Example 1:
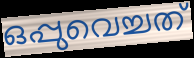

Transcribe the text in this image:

ഒപ്പുവെച്ചത്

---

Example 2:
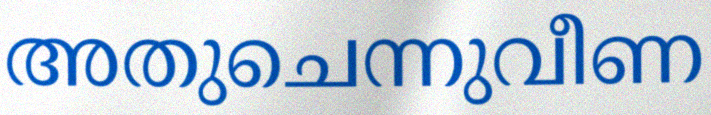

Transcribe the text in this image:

അതുചെന്നുവീണ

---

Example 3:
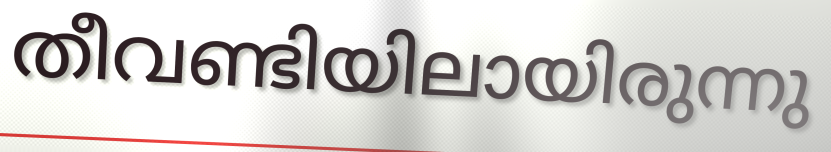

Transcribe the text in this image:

തീവണ്ടിയിലായിരുന്നു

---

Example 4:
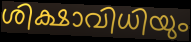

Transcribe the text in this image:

ശിക്ഷാവിധിയും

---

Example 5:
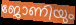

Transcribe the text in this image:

ജോണിയും